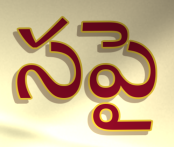
సపై